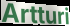
Artturi